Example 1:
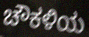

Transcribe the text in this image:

ಚೌಕಳಿಯ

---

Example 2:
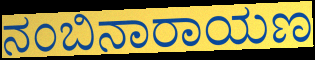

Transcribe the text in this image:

ನಂಬಿನಾರಾಯಣ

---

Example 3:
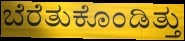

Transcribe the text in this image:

ಬೆರೆತುಕೊಂಡಿತ್ತು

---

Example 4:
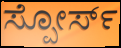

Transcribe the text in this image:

ಸ್ಪೋರ್ಸ್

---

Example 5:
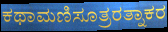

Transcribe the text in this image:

ಕಥಾಮಣಿಸೂತ್ರರತ್ನಾಕರ